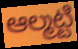
ఆల్మట్టి